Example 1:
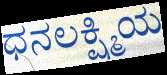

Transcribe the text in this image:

ಧನಲಕ್ಷ್ಮಿಯ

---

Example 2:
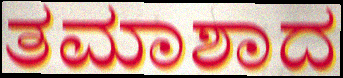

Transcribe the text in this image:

ತಮಾಶಾದ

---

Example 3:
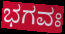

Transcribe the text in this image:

ಭಗವಃ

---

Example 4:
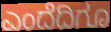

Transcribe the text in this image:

ಎಂದೆದಿಗೂ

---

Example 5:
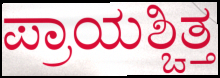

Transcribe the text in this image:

ಪ್ರಾಯಶ್ಚಿತ್ತ